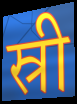
स्री